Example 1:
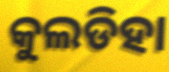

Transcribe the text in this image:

କୁଲଡିହା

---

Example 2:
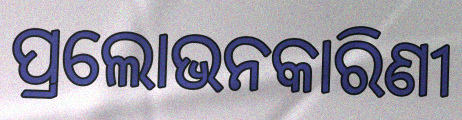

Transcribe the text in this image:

ପ୍ରଲୋଭନକାରିଣୀ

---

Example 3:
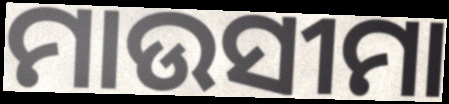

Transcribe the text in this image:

ମାଉସୀମା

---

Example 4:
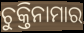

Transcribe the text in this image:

ଚୁକ୍ତିନାମାର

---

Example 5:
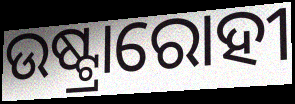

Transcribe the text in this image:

ଉଷ୍ଟ୍ରାରୋହୀ